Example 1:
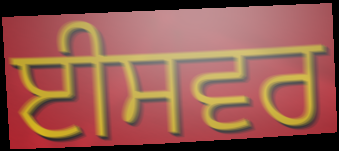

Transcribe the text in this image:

ਈਸਵਰ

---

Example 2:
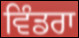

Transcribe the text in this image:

ਵਿੰਡਰਾ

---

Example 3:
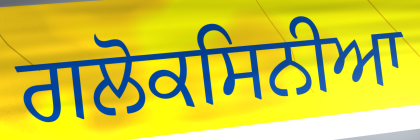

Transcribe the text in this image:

ਗਲੋਕਸਿਨੀਆ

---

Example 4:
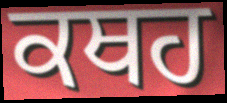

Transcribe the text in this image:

ਕਥਹ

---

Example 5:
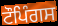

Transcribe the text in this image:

ਟੌਪਿੰਗਸ